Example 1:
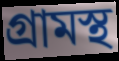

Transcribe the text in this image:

গ্রামস্থ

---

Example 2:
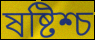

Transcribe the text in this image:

ষষ্টিশ্চ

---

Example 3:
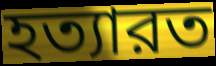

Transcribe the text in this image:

হত্যারত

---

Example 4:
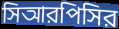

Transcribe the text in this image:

সিআরপিসির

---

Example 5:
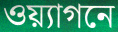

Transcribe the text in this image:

ওয়্যাগনে